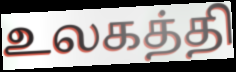
உலகத்தி